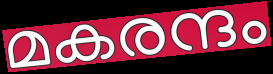
മകരന്ദം